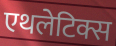
एथलेटिक्स